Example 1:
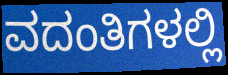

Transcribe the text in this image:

ವದಂತಿಗಳಲ್ಲಿ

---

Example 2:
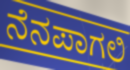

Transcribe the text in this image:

ನೆನಪಾಗಲಿ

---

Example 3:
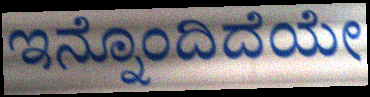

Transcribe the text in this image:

ಇನ್ನೊಂದಿದೆಯೇ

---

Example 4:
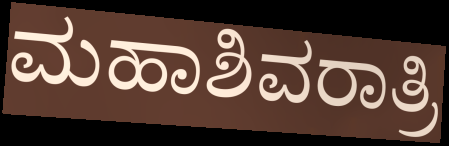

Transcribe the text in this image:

ಮಹಾಶಿವರಾತ್ರಿ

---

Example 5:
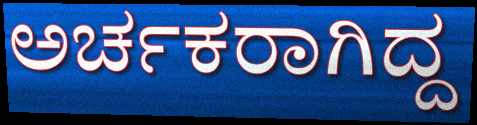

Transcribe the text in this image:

ಅರ್ಚಕರಾಗಿದ್ದ